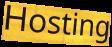
Hosting